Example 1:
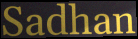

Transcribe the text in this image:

Sadhan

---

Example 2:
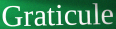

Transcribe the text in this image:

Graticule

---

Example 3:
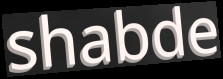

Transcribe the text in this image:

shabde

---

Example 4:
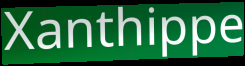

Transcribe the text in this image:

Xanthippe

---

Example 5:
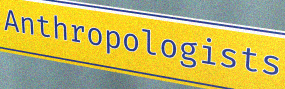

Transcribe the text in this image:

Anthropologists